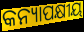
କନ୍ୟାପକ୍ଷୀୟ